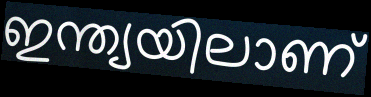
ഇന്ത്യയിലാണ്